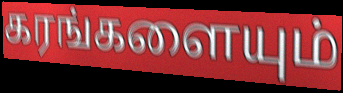
கரங்களையும்